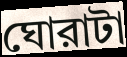
ঘোরাটা